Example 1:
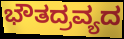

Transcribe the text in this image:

ಭೌತದ್ರವ್ಯದ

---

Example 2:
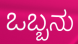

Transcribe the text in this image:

ಒಬ್ಬನು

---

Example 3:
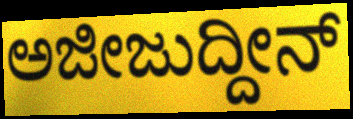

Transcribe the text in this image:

ಅಜೀಜುದ್ದೀನ್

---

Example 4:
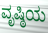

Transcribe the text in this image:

ವೃಷ್ಠಿಯ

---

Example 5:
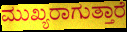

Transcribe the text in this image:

ಮುಖ್ಯರಾಗುತ್ತಾರೆ